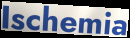
Ischemia